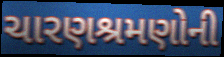
ચારણશ્રમણોની